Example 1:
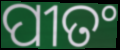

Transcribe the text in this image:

ପୀତଂ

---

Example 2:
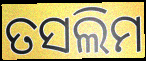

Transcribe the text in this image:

ତସଲିମ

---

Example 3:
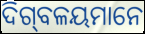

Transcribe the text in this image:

ଦିଗ୍‌ବଳୟମାନେ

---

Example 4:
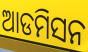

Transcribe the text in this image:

ଆଡମିସନ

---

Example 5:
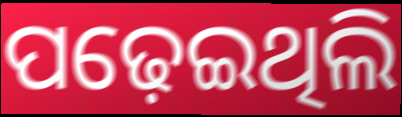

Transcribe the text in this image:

ପଢ଼େଇଥିଲି